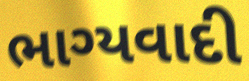
ભાગ્યવાદી